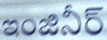
ఇంజినీర్